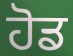
ਹੋਡ